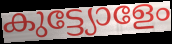
കുട്ട്യോളേം